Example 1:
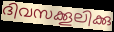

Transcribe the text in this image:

ദിവസക്കൂലിക്കു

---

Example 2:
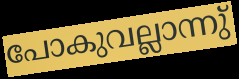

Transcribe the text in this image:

പോകുവല്ലാന്നു്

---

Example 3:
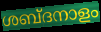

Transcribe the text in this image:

ശബ്ദനാളം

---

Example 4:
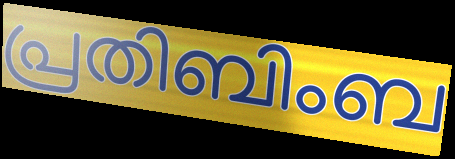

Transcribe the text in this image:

പ്രതിബിംബ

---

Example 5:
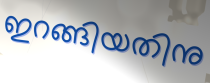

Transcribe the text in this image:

ഇറങ്ങിയതിനു